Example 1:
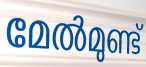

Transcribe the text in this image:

മേൽമുണ്ട്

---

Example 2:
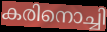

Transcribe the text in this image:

കരിനൊച്ചി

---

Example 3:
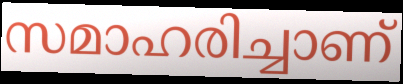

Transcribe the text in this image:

സമാഹരിച്ചാണ്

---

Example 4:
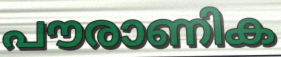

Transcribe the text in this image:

പൗരാണിക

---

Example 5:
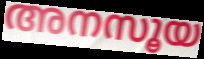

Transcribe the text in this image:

അനസൂയ